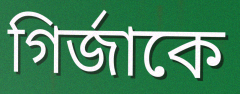
গির্জাকে